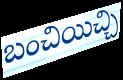
బంచియిచ్చి